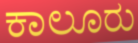
ಕಾಲೂರು